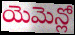
యెమెన్లో